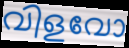
വിളവോ